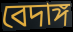
বেদাঙ্গ